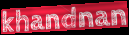
khandnan